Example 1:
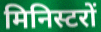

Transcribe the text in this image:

मिनिस्टरों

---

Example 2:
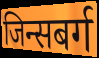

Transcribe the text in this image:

जिन्सबर्ग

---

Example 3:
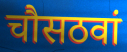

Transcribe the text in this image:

चौसठवां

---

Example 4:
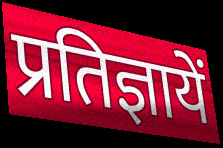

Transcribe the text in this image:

प्रतिज्ञायें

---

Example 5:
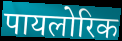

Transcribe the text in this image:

पायलोरिक